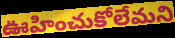
ఊహించుకోలేమని